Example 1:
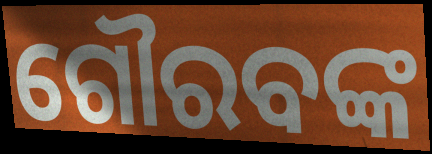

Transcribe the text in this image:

ଗୌରବଙ୍କ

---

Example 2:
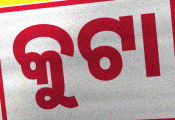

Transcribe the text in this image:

କୁଟା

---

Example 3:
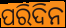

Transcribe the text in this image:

ପରିଦିନ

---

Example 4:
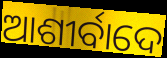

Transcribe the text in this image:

ଆଶୀର୍ବାଦେ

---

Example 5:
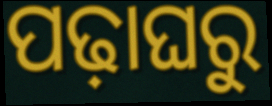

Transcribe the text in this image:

ପଢ଼ାଘରୁ